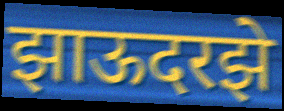
झाऊदरझे